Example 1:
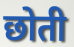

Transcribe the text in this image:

छोती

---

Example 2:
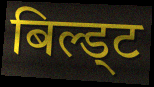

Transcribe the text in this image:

बिल्ड्ट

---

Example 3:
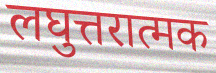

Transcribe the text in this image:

लघुत्तरात्मक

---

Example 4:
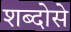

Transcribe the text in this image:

शब्दोसे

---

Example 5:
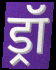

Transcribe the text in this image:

ड्रॉ